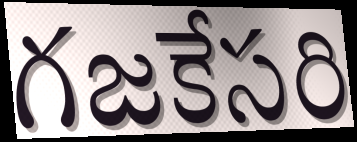
గజకేసరి